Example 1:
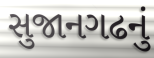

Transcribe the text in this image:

સુજાનગઢનું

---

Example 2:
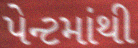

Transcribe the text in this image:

પેન્ટમાંથી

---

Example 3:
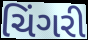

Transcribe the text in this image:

ચિંગરી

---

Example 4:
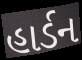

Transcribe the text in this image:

હાર્ડન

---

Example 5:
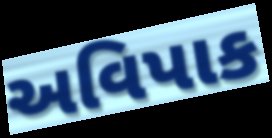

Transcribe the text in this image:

અવિપાક